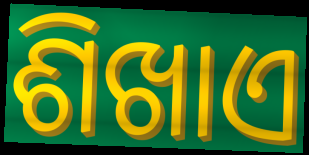
ଶିଖାଏ